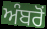
ਅੰਬਰੋਂ